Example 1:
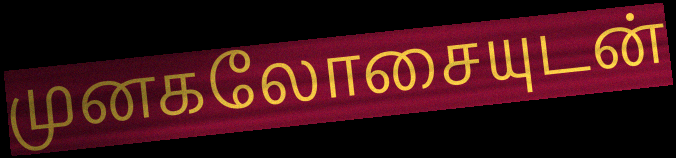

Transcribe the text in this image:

முனகலோசையுடன்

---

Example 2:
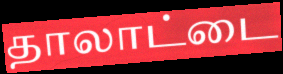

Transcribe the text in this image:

தாலாட்டை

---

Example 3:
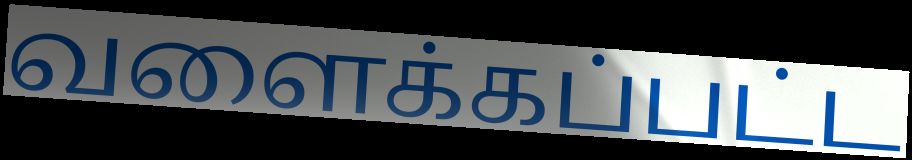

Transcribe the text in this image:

வளைக்கப்பட்ட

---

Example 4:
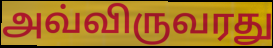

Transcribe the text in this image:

அவ்விருவரது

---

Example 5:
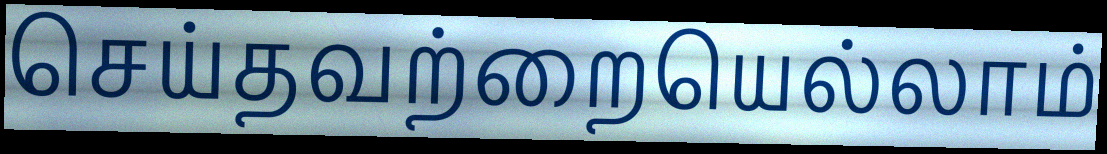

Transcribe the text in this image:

செய்தவற்றையெல்லாம்